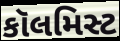
કૉલમિસ્ટ